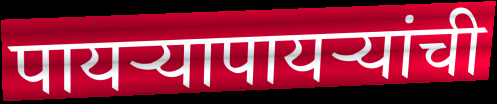
पायऱ्यापायऱ्यांची